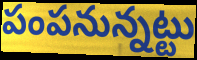
పంపనున్నట్టు